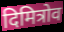
दिमित्रोव